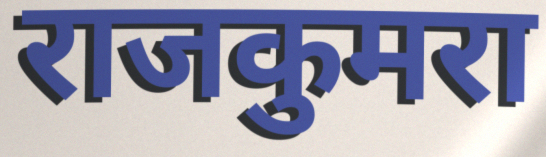
राजकुमरा